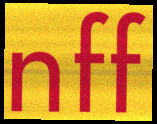
nff